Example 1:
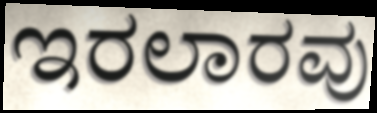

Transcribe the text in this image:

ಇರಲಾರವು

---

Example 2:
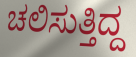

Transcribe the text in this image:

ಚಲಿಸುತ್ತಿದ್ದ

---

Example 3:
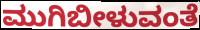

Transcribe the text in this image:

ಮುಗಿಬೀಳುವಂತೆ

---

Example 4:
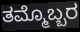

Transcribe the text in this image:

ತಮ್ಮೊಬ್ಬರ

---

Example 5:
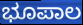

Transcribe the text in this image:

ಭೂಪಾಲ